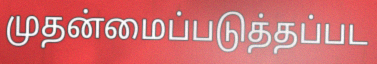
முதன்மைப்படுத்தப்பட